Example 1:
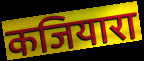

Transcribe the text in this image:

कजियारा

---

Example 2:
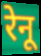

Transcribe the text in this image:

रेनू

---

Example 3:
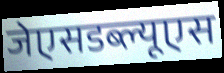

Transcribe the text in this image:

जेएसडब्ल्यूएस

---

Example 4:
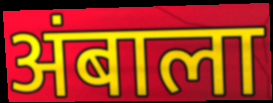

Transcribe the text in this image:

अंबाला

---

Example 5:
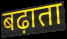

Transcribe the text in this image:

बढ़ाता